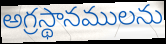
అగ్రస్థానములను